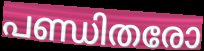
പണ്ഡിതരോ